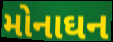
મોનાઘન